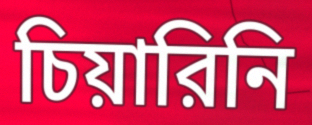
চিয়ারিনি